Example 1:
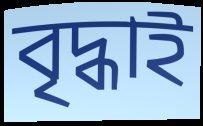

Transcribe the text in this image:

বৃদ্ধাই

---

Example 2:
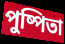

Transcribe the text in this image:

পুষ্পিতা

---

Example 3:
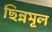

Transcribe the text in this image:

ছিন্নমূল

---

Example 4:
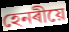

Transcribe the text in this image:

হেনৰীয়ে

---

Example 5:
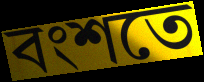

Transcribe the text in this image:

বংশতে